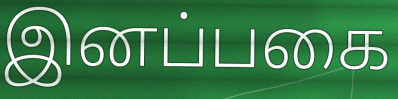
இனப்பகை